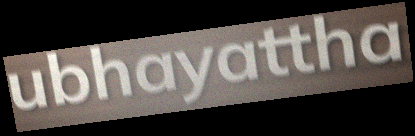
ubhayattha